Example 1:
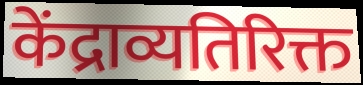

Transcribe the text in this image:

केंद्राव्यतिरिक्त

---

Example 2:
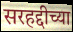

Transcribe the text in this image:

सरहद्दीच्या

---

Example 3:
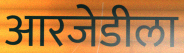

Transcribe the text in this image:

आरजेडीला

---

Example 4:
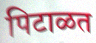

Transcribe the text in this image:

पिटाळत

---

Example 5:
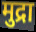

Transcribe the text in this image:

मुद्रा